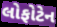
લોફોટેન